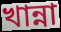
খান্না